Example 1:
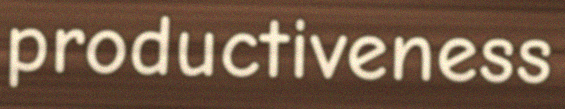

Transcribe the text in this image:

productiveness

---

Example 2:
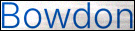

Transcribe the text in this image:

Bowdon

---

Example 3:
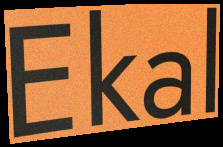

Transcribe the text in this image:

Ekal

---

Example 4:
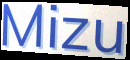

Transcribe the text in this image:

Mizu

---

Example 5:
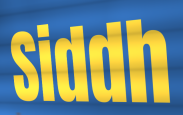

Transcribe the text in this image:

Siddh